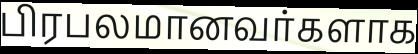
பிரபலமானவர்களாக